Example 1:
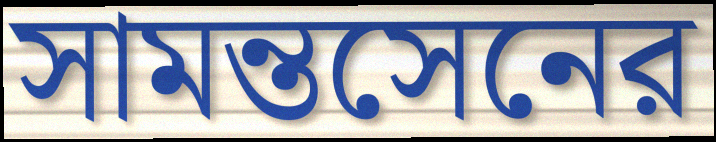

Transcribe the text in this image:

সামন্তসেনের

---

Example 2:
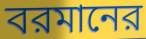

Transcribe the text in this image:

বরমানের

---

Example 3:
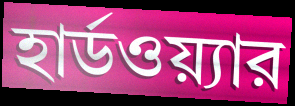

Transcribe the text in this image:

হার্ডওয়্যার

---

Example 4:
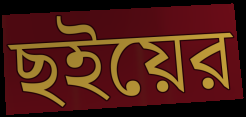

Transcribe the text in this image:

ছইয়ের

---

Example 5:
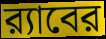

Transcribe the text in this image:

র‍্যাবের